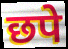
छपे